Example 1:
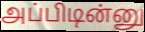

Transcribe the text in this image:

அப்பிடின்னு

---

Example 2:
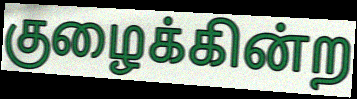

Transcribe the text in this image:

குழைக்கின்ற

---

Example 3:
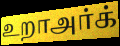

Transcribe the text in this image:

உறாஅர்க்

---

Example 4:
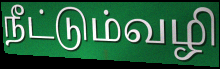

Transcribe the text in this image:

நீட்டும்வழி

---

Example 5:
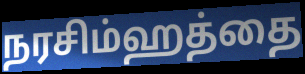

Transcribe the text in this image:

நரசிம்ஹத்தை